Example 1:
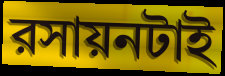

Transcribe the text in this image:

রসায়নটাই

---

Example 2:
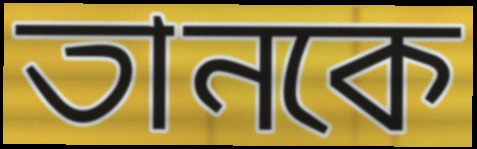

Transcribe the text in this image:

তানকে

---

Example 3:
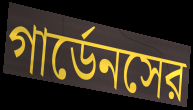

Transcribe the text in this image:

গার্ডেনসের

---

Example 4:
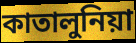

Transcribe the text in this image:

কাতালুনিয়া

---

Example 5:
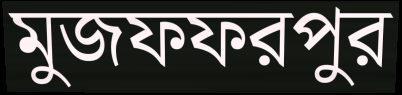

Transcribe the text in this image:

মুজফফরপুর